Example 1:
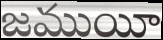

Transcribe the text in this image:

జముయీ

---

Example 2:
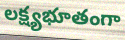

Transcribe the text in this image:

లక్ష్యభూతంగా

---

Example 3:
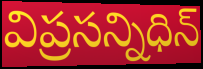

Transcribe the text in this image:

విప్రసన్నిధిన్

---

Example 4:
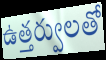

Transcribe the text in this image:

ఉత్తర్వులతో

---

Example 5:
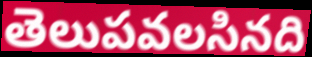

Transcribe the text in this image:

తెలుపవలసినది